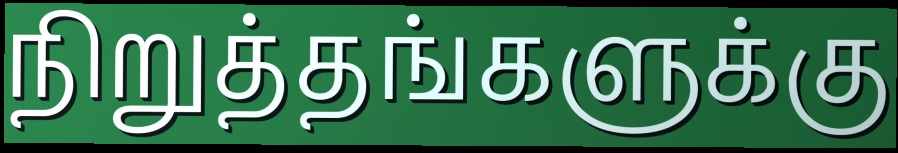
நிறுத்தங்களுக்கு